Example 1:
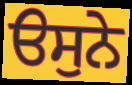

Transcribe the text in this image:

ੳਸੁਨੇ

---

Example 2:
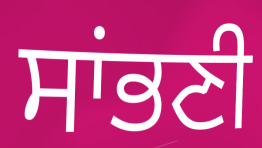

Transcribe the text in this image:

ਸਾਂਭਣੀ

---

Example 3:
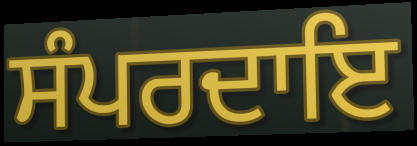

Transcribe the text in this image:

ਸੰਪਰਦਾਇ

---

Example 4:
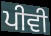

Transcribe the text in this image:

ਪੀਵੀ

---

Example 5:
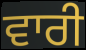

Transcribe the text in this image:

ਵਾਰੀ